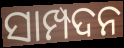
ସାମ୍ପଦନ